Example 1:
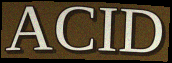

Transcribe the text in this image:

ACID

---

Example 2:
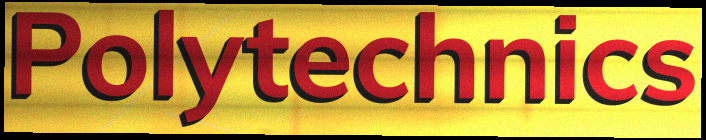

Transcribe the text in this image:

Polytechnics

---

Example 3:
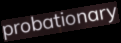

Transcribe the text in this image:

probationary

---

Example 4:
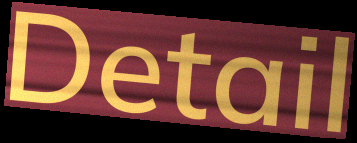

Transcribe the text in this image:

Detail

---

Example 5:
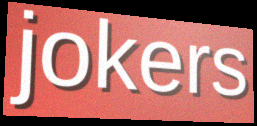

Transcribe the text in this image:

jokers